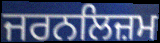
ਜਰਨਲਿਜ਼ਮ